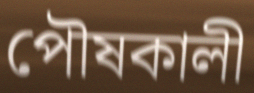
পৌষকালী